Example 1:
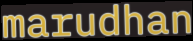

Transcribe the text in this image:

marudhan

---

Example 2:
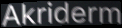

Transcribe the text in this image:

Akriderm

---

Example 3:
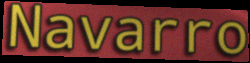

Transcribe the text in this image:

Navarro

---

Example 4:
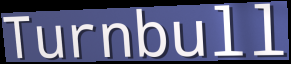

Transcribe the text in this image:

Turnbull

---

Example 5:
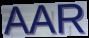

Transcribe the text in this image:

AAR